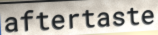
aftertaste